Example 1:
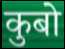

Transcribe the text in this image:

कुबो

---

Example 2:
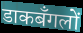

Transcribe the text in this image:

डाकबँगलों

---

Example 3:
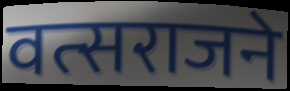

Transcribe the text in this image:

वत्सराजने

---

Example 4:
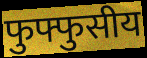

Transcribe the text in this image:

फुफ्फुसीय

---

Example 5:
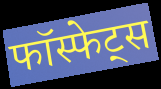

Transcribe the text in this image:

फॉस्फेट्स